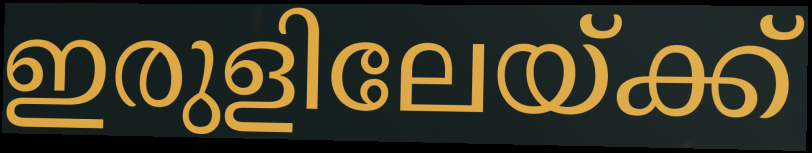
ഇരുളിലേയ്ക്ക്